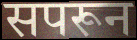
सपरून